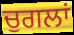
ਚੁਗਲਾਂ